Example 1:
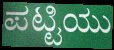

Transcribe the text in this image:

ಪಟ್ಟಿಯು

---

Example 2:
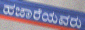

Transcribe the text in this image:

ಹಜಾರೆಯವರು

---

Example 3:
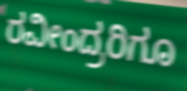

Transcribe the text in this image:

ರವೀಂದ್ರರಿಗೂ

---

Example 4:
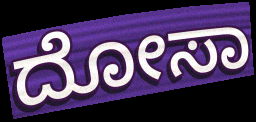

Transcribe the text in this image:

ದೋಸಾ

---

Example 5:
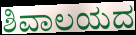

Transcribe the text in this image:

ಶಿವಾಲಯದ